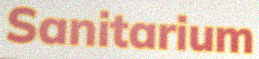
Sanitarium